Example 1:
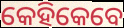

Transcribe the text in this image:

କେହିକେବେ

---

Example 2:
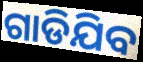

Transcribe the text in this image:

ଗାଡିଯିବ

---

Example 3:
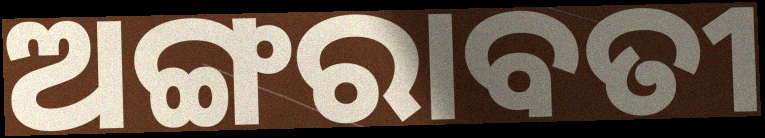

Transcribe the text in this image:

ଅଙ୍ଗରାବତୀ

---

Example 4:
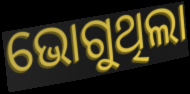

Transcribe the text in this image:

ଭୋଗୁଥିଲା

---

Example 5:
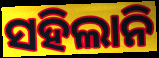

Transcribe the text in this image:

ସହିଲାନି